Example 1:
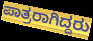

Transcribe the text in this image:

ಪಾತ್ರರಾಗಿದ್ದರು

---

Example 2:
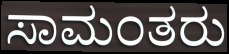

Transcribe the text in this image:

ಸಾಮಂತರು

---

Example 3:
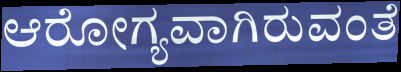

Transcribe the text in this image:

ಆರೋಗ್ಯವಾಗಿರುವಂತೆ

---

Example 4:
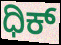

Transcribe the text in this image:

ಧಿಕ್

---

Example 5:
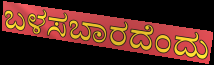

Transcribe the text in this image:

ಬಳಸಬಾರದೆಂದು